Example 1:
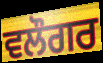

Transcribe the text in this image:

ਵਲੌਗਰ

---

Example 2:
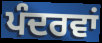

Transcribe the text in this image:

ਪੰਦਰਵਾਂ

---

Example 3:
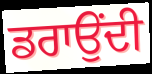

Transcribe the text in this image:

ਡਰਾਉਂਦੀ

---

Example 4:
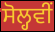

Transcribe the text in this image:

ਸੋਲ੍ਹਵੀਂ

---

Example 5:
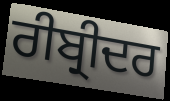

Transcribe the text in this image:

ਰੀਬ੍ਰੀਦਰ